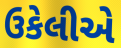
ઉકેલીએ